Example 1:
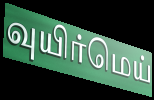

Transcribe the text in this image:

வுயிர்மெய்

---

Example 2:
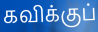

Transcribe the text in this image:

கவிக்குப்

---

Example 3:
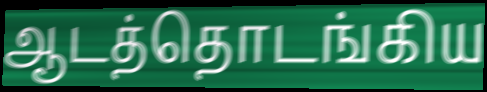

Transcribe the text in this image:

ஆடத்தொடங்கிய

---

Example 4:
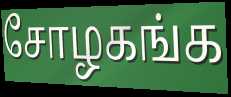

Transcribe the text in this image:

சோழகங்க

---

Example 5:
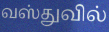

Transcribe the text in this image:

வஸ்துவில்